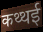
कथ्थई